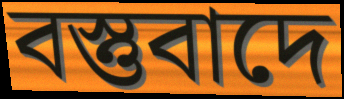
বস্তুবাদে